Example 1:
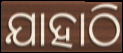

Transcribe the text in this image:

ଯାହାଠି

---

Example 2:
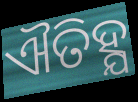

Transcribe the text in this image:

ଐତିହ୍ଯ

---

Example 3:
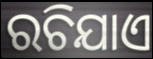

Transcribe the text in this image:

ରଚିଯାଏ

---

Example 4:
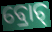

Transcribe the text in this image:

ବ୍ରୋଚ୍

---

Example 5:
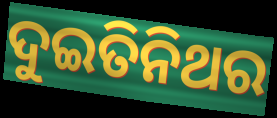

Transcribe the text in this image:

ଦୁଇତିନିଥର